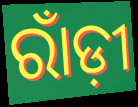
ରାଁଡ଼ୀ